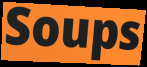
Soups